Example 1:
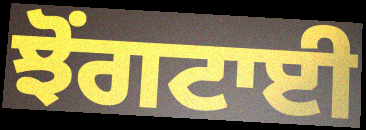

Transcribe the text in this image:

ਝੋਂਗਟਾਈ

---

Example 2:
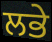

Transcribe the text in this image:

ਲਭੇ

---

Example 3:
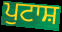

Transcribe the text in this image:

ਪੁਟਾਸ਼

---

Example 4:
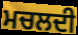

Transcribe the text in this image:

ਮਚਲਦੀ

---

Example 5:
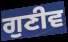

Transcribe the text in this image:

ਗੁਣੀਵ